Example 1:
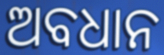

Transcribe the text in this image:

ଅବଧାନ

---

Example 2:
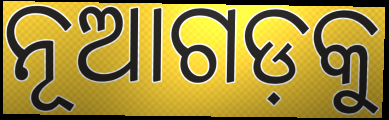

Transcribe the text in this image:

ନୂଆଗଡ଼କୁ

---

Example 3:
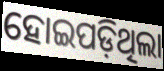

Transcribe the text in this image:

ହୋଇପଡ଼ିଥିଲା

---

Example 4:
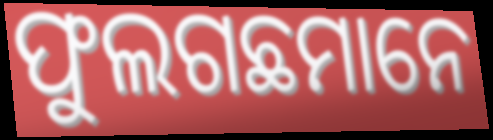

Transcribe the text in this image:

ଫୁଲଗଛମାନେ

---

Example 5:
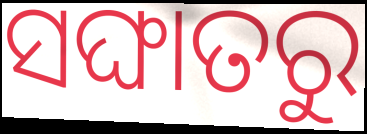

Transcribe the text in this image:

ସଙ୍ଘାତରୁ